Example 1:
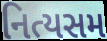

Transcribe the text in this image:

નિત્યસમ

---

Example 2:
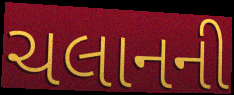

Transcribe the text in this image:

ચલાનની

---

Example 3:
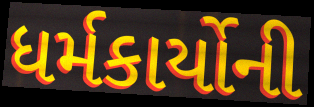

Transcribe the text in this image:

ધર્મકાર્યોની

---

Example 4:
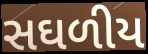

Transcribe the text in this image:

સઘળીય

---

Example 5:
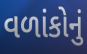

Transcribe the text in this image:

વળાંકોનું